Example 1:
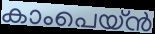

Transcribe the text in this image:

കാംപെയ്ൻ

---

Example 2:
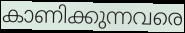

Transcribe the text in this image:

കാണിക്കുന്നവരെ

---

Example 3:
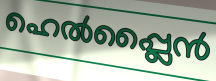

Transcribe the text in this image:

ഹെൽപ്പ്ലൈൻ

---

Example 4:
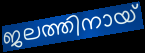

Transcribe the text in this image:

ജലത്തിനായ്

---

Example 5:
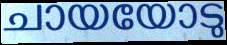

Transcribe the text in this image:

ചായയോടു